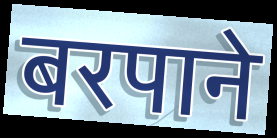
बरपाने